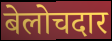
बेलोचदार